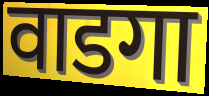
वाडगा